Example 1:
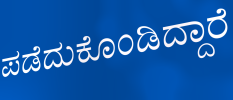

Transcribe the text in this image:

ಪಡೆದುಕೊಂಡಿದ್ದಾರೆ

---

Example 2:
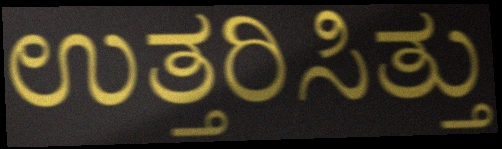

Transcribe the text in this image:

ಉತ್ತರಿಸಿತ್ತು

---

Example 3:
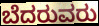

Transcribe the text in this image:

ಬೆದರುವರು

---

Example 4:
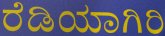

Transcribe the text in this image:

ರೆಡಿಯಾಗಿರಿ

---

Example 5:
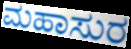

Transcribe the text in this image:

ಮಹಾಸುರ